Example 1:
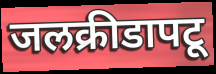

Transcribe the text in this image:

जलक्रीडापटू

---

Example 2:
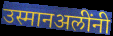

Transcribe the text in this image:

उस्मानअलींनी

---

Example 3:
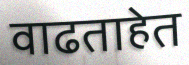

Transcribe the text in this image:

वाढताहेत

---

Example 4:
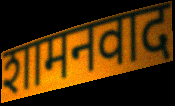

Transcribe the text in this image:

शामनवाद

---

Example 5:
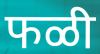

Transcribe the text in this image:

फळी